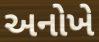
અનોખે